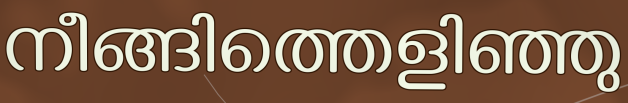
നീങ്ങിത്തെളിഞ്ഞു